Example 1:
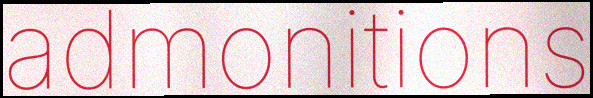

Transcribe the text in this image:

admonitions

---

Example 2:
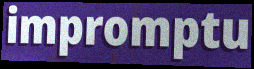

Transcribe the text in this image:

impromptu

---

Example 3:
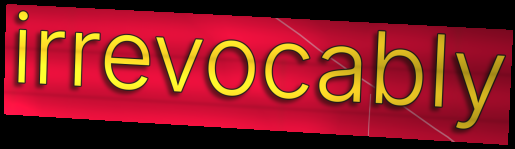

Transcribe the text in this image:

irrevocably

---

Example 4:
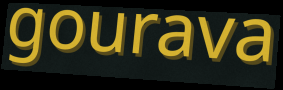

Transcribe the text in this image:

gourava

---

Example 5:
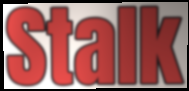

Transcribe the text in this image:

Stalk